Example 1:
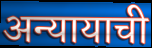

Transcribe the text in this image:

अन्यायाची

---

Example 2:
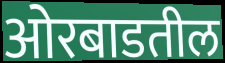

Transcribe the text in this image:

ओरबाडतील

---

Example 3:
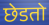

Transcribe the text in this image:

छेडतो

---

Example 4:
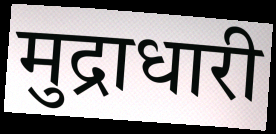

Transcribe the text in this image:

मुद्राधारी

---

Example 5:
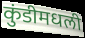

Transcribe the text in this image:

कुंडीमधली